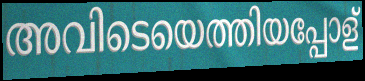
അവിടെയെത്തിയപ്പോള്